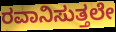
ರವಾನಿಸುತ್ತಲೇ